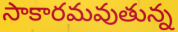
సాకారమవుతున్న